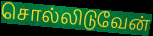
சொல்லிடுவேன்